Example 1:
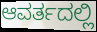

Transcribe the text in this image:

ಆವರ್ತದಲ್ಲಿ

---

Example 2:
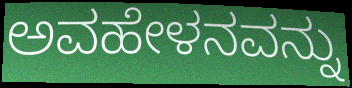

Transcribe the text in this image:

ಅವಹೇಳನವನ್ನು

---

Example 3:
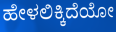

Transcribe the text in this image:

ಹೇಳಲಿಕ್ಕಿದೆಯೋ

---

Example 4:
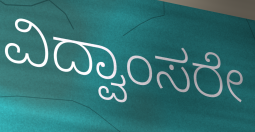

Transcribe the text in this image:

ವಿದ್ವಾಂಸರೇ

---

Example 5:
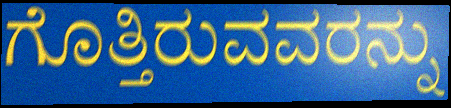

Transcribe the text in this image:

ಗೊತ್ತಿರುವವರನ್ನು